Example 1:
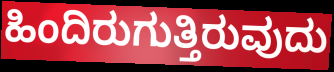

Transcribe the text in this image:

ಹಿಂದಿರುಗುತ್ತಿರುವುದು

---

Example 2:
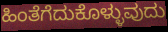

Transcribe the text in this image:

ಹಿಂತೆಗೆದುಕೊಳ್ಳುವುದು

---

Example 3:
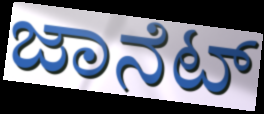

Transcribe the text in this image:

ಜಾನೆಟ್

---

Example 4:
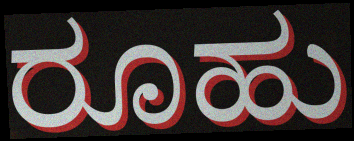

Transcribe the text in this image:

ರೂಹು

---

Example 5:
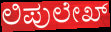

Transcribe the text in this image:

ಲಿಪುಲೇಖ್